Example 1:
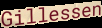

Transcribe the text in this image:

Gillessen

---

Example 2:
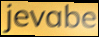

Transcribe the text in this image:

jevabe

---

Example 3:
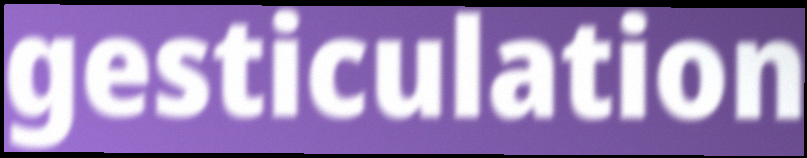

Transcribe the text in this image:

gesticulation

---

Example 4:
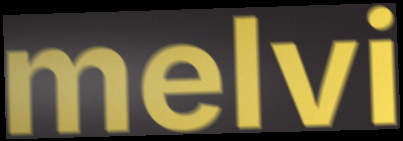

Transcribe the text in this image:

melvi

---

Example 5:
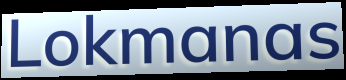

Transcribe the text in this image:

Lokmanas